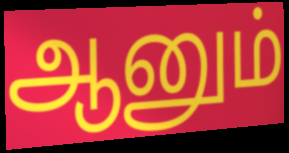
ஆனும்